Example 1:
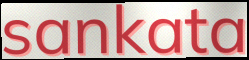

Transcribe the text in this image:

sankata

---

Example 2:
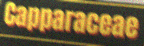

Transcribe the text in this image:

Capparaceae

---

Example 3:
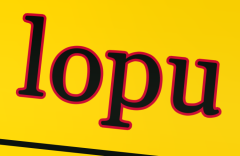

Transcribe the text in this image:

lopu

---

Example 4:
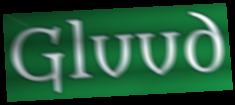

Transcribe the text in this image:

Gluud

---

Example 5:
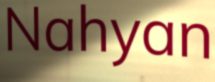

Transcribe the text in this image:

Nahyan